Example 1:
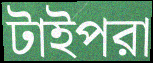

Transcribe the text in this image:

টাইপরা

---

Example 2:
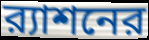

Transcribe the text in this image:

র‍্যাশনের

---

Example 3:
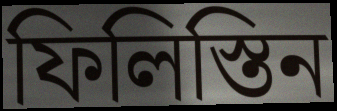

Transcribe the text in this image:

ফিলিস্তিন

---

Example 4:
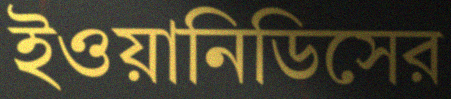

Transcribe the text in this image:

ইওয়ানিডিসের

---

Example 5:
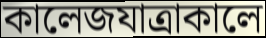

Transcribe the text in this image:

কালেজযাত্রাকালে